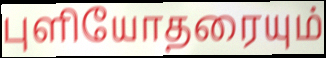
புளியோதரையும்